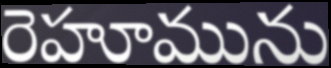
రెహూమును